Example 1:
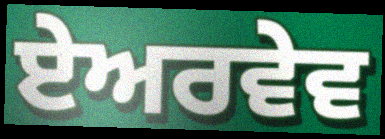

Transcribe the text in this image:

ਏਅਰਵੇਵ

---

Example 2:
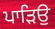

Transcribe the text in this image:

ਪਾੜਿਉ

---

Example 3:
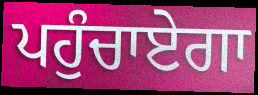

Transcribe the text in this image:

ਪਹੁੰਚਾਏਗਾ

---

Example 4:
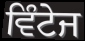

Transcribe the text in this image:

ਵਿੰਟੇਜ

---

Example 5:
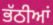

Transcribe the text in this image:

ਭੱਠੀਆਂ